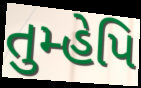
તુમ્હેપિ